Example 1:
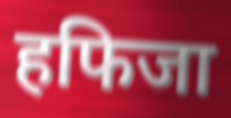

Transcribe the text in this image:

हफिजा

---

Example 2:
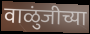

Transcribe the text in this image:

वाळुंजीच्या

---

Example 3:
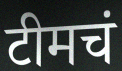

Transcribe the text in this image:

टीमचं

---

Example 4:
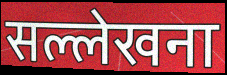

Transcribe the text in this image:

सल्लेखना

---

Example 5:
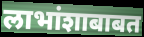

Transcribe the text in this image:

लाभांशाबाबत